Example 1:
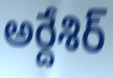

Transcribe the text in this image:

అర్దేశిర్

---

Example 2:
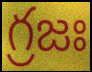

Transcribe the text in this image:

గ్రజః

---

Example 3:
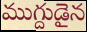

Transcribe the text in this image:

ముగ్దుడైన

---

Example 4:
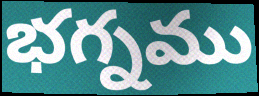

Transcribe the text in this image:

భగ్నము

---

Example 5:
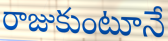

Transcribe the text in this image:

రాజుకుంటూనే